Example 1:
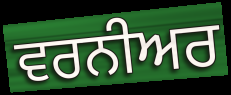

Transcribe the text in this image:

ਵਰਨੀਅਰ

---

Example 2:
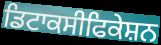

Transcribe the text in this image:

ਡਿਟਾਕਸੀਫਿਕੇਸ਼ਨ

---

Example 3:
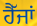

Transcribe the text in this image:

ਹੈੱਜਾਂ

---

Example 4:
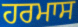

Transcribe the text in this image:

ਹਰਮਾਸ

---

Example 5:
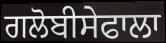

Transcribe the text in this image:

ਗਲੋਬੀਸੇਫਾਲਾ